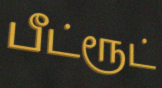
பீட்ரூட்